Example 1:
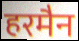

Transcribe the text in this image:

हरमैन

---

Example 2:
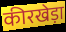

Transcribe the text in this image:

कीरखेड़ा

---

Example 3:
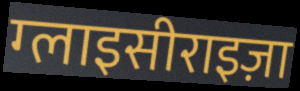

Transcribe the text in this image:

ग्लाइसीराइज़ा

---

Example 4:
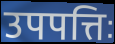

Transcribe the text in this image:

उपपत्तिः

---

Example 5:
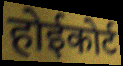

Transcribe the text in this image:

होईकोर्ट